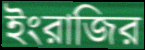
ইংরাজির